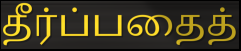
தீர்ப்பதைத்